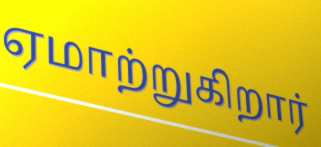
ஏமாற்றுகிறார்